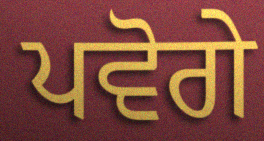
ਪਵੋਗੇ